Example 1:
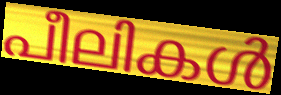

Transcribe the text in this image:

പീലികൾ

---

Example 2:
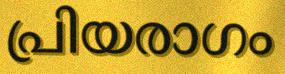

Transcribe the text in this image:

പ്രിയരാഗം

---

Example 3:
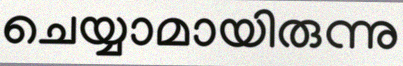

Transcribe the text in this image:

ചെയ്യാമായിരുന്നു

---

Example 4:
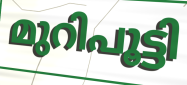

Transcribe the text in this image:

മുറിപൂട്ടി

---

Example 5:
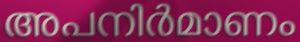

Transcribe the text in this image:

അപനിർമാണം